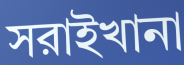
সরাইখানা